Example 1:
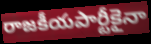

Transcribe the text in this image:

రాజకీయపార్టీకైనా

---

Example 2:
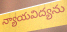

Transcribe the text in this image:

న్యాయవిద్యను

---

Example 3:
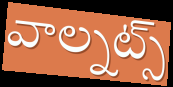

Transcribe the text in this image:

వాల్నట్స్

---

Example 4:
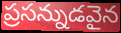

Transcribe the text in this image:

ప్రసన్నుడవైన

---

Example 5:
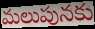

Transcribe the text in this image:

మలుపునకు